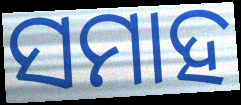
ସମାହ